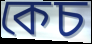
কেচ